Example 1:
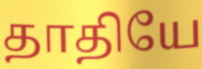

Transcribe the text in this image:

தாதியே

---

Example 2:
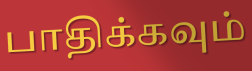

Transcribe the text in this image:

பாதிக்கவும்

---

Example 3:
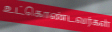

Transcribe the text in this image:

உட்கொண்டவர்கள்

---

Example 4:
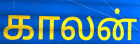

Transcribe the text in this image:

காலன்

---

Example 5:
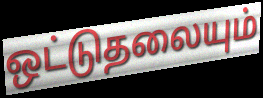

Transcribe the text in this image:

ஒட்டுதலையும்